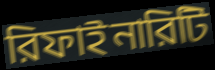
রিফাইনারিটি